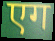
एग